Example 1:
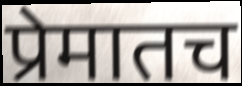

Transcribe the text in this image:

प्रेमातच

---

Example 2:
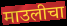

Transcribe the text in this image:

माउलीचा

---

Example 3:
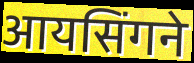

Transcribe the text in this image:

आयसिंगने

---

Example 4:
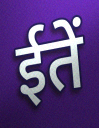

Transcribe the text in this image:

ईतें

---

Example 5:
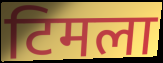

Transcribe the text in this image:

टिमला